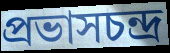
প্রভাসচন্দ্র